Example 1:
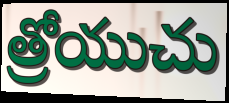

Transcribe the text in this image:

త్రోయుచు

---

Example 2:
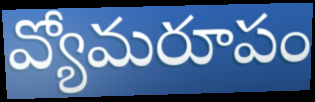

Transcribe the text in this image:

వ్యోమరూపం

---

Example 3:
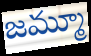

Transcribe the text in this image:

జమ్మూ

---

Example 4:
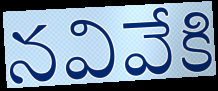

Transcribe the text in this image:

నవివేకి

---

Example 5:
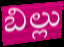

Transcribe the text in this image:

బిల్లు